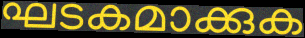
ഘടകമാക്കുക